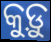
କୁଡ଼ୁ